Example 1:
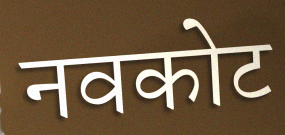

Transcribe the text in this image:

नवकोट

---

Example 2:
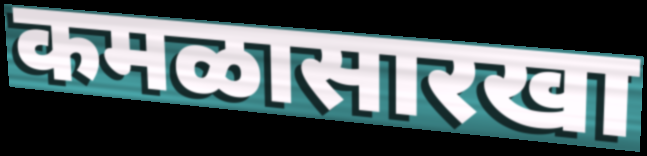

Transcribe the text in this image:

कमळासारखा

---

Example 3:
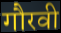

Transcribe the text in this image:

गौरवी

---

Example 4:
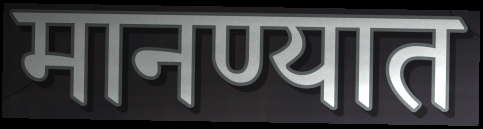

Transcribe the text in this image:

मानण्यात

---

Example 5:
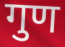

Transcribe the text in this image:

गुण